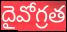
దైవోగ్రత